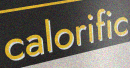
calorific